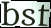
bst